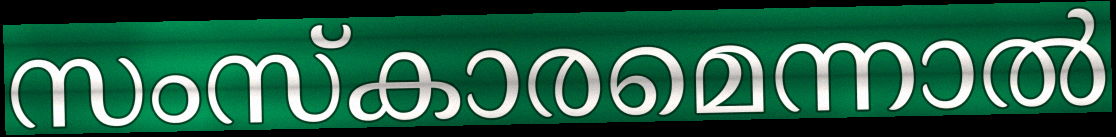
സംസ്കാരമെന്നാൽ